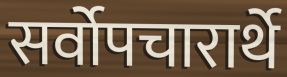
सर्वोपचारार्थे